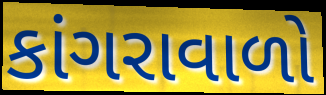
કાંગરાવાળો